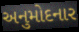
અનુમોદનાર